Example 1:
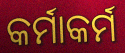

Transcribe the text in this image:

କର୍ମାକର୍ମ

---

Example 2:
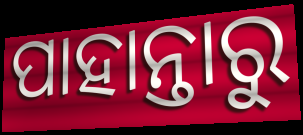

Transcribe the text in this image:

ପାହାନ୍ତାରୁ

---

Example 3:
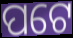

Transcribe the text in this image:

ପଟେ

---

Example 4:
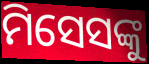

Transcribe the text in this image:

ମିସେସଙ୍କୁ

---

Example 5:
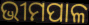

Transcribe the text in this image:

ଭୀମପାଳ